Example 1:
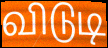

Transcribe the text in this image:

விடுடி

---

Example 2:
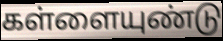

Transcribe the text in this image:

கள்ளையுண்டு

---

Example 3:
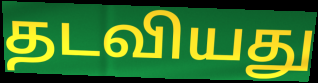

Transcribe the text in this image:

தடவியது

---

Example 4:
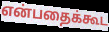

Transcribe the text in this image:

என்பதைக்கூட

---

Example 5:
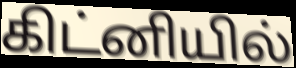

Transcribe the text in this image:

கிட்னியில்